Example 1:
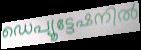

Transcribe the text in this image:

ഡെപ്യൂട്ടേഷനിൽ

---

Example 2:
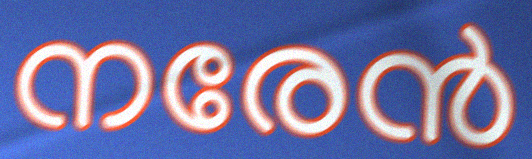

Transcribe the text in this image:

നരേൻ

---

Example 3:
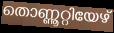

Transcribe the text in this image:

തൊണ്ണൂറ്റിയേഴ്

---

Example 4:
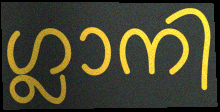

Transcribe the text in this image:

ഗ്ലാനി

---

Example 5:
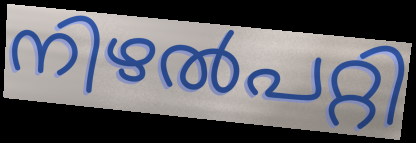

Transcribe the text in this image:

നിഴൽപറ്റി